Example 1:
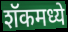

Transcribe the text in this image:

शॅकमध्ये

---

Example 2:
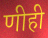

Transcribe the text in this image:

णीही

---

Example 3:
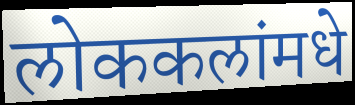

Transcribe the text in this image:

लोककलांमधे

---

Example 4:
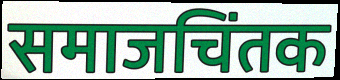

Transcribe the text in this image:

समाजचिंतक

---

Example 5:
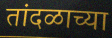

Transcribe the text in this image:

तांदळाच्या